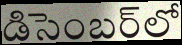
డిసెంబర్‌లో